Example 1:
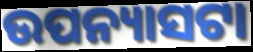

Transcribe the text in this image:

ଉପନ୍ୟାସଟା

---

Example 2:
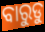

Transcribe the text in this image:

ବାରୁଡୁ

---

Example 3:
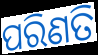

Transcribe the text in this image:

ପରିଣତି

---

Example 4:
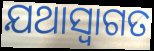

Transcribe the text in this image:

ଯଥାସ୍ଵାଗତ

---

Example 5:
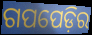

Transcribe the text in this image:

ଗପପେଡ଼ିର